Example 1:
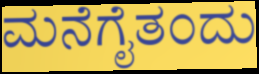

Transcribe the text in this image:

ಮನೆಗೈತಂದು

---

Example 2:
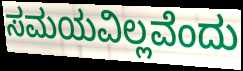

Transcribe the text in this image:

ಸಮಯವಿಲ್ಲವೆಂದು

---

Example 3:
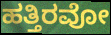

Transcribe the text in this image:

ಹತ್ತಿರವೋ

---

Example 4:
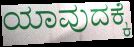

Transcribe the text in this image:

ಯಾವುದಕ್ಕೆ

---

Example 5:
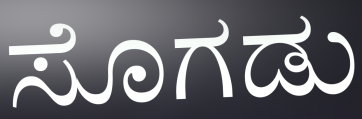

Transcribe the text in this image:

ಸೊಗಡು